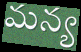
మన్య